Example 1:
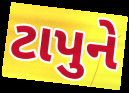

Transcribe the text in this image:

ટાપુને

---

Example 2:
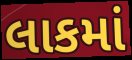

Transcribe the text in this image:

લાકમાં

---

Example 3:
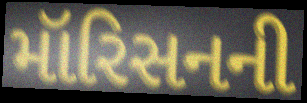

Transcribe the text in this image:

મૉરિસનની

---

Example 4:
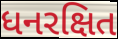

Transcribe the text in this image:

ધનરક્ષિત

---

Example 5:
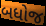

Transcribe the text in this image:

બધોજ